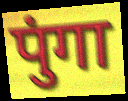
पुंगा